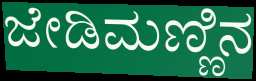
ಜೇಡಿಮಣ್ಣಿನ